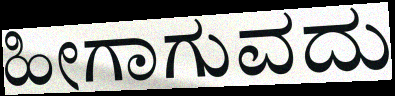
ಹೀಗಾಗುವದು